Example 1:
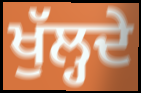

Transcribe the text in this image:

ਖੁੱਲ੍ਹਦੇ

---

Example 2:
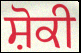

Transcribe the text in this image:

ਸ਼ੋਕੀ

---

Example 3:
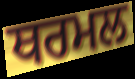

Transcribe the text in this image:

ਥਰਮਲ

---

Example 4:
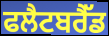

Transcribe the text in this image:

ਫਲੈਟਬਰੈੱਡ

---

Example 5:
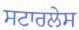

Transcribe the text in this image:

ਸਟਾਰਲੇਸ